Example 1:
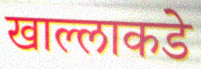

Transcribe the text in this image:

खाल्लाकडे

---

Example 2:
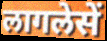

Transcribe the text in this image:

लागलेसें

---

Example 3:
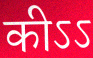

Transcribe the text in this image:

कीऽऽ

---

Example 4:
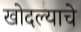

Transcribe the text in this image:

खोदल्याचे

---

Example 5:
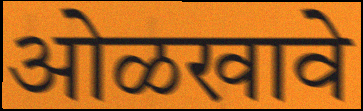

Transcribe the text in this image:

ओळखावे